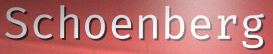
Schoenberg